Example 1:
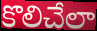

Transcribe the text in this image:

కొలిచేలా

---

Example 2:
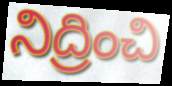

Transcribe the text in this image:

నిద్రించి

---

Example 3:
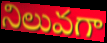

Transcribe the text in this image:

నిలువగా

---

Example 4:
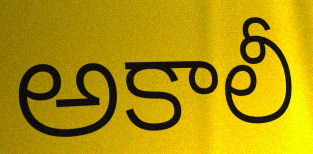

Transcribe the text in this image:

అకాలీ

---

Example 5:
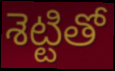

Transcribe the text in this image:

శెట్టితో